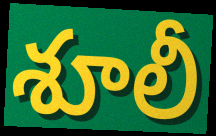
శూలీ